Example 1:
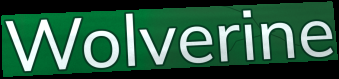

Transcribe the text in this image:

Wolverine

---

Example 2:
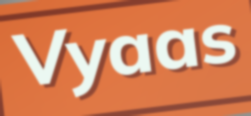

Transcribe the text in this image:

Vyaas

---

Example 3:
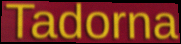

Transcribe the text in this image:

Tadorna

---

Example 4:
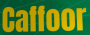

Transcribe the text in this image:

Caffoor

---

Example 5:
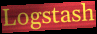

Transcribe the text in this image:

Logstash